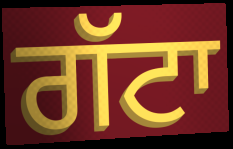
ਗੱਟਾ